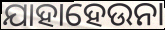
ଯାହାହେଉନା